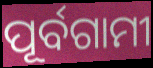
ପୂର୍ବଗାମୀ